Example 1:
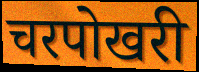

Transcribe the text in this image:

चरपोखरी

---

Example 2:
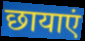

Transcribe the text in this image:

छायाएं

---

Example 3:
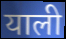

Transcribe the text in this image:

याली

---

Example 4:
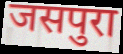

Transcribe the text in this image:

जसपुरा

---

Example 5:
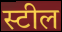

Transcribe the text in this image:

स्‍टील